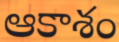
ఆకాశం